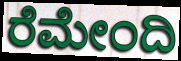
ರೆಮೇಂದಿ